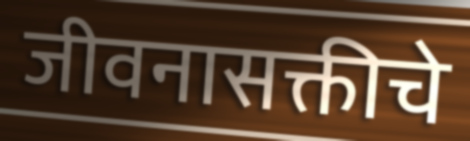
जीवनासक्तीचे